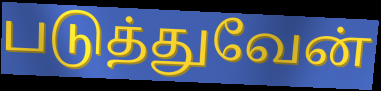
படுத்துவேன்